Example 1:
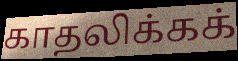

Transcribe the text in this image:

காதலிக்கக்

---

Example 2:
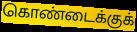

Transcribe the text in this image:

கொண்டைக்குக்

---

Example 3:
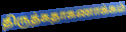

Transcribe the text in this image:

திருத்கதாகணாக்கம்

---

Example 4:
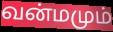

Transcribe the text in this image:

வன்மமும்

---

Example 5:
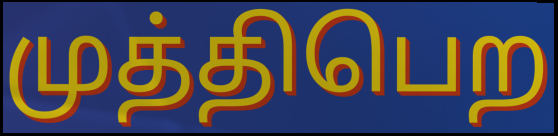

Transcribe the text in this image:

முத்திபெற